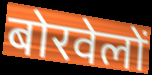
बोरवेलों